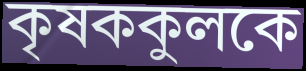
কৃষককুলকে